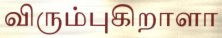
விரும்புகிறாளா